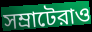
সম্রাটেরাও